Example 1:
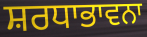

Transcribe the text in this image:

ਸ਼ਰਧਾਭਾਵਨਾ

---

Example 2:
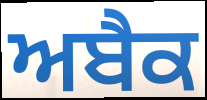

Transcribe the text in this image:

ਅਬੈਕ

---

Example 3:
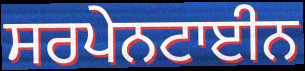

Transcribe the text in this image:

ਸਰਪੇਨਟਾਈਨ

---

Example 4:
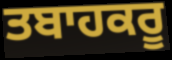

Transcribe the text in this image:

ਤਬਾਹਕਰੂ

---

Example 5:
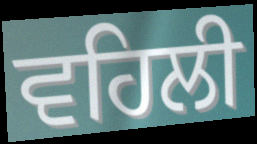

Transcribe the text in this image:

ਵਹਿਲੀ